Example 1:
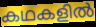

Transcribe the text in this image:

കഥകളിൽ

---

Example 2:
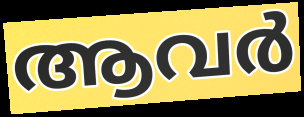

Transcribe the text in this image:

ആവർ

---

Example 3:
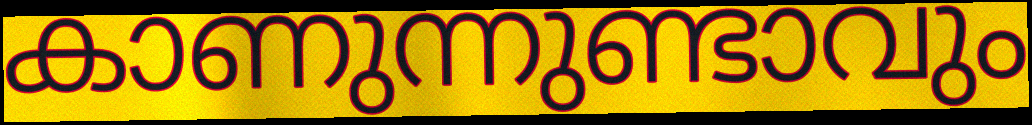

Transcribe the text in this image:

കാണുന്നുണ്ടാവും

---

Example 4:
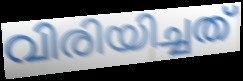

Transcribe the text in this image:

വിരിയിച്ചത്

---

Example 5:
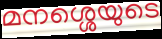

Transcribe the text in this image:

മനശ്ശെയുടെ